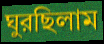
ঘুরছিলাম